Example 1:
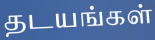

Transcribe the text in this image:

தடயங்கள்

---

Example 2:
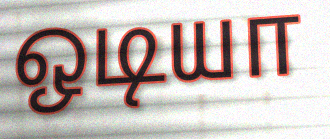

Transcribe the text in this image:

ஒடியா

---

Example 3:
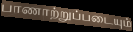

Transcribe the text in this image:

பாணாற்றுப்படையும்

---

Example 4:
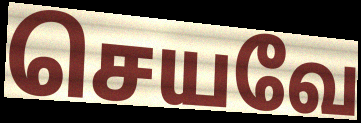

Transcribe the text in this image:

செயவே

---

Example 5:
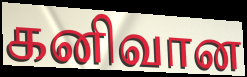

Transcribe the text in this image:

கனிவான